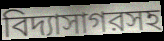
বিদ্যাসাগরসহ